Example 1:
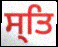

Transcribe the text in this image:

ਸ੍ਤਿ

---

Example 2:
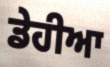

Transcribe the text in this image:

ਡੇਹੀਆ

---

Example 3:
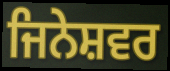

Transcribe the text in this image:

ਜਿਨੇਸ਼ਵਰ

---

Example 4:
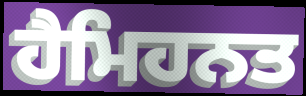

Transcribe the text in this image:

ਹੈਮਿਹਨਤ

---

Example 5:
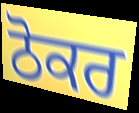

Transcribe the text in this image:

ਠੋਕਰ